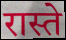
रास्ते